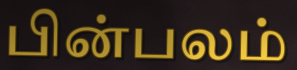
பின்பலம்